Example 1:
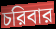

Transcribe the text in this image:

চরিবার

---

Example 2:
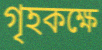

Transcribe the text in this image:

গৃহকক্ষে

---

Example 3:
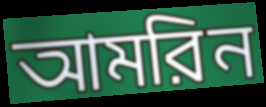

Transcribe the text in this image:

আমরিন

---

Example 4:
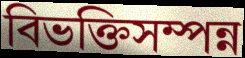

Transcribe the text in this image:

বিভক্তিসম্পন্ন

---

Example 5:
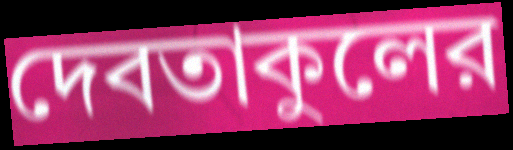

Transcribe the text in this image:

দেবতাকুলের